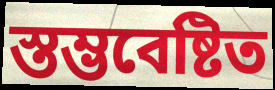
স্তম্ভবেষ্টিত